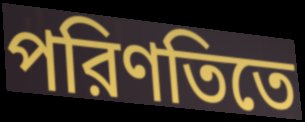
পরিণতিতে